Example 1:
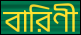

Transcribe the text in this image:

বারিণী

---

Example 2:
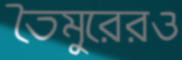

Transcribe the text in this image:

তৈমুরেরও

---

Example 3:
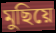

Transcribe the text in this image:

মুছিয়ে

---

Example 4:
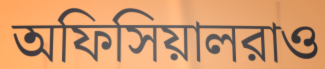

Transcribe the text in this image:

অফিসিয়ালরাও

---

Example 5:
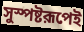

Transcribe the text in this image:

সুস্পষ্টরূপেই